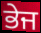
ਭੇਜ